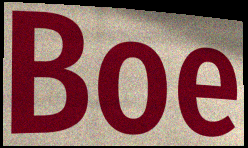
Boe